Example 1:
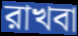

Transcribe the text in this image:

রাখবা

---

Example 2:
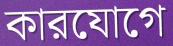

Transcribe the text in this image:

কারযোগে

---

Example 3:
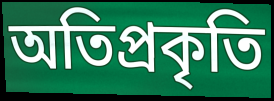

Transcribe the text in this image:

অতিপ্রকৃতি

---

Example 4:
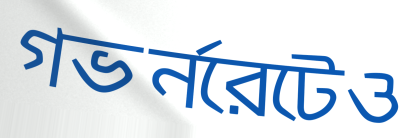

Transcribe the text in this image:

গভর্নরেটেও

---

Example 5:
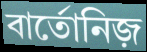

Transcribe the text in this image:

বার্তোনিজ়